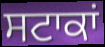
ਸਟਾਕਾਂ